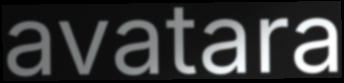
avatara